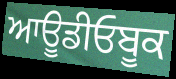
ਆਊਡੀਓਬੂਕ